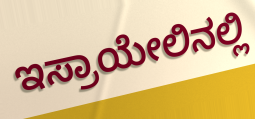
ಇಸ್ರಾಯೇಲಿನಲ್ಲಿ